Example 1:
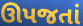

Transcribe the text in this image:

ઊપજતાં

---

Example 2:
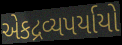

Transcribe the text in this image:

એકદ્રવ્યપર્યાયો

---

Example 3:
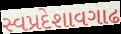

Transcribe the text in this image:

સ્વપ્રદેશાવગાઢ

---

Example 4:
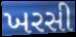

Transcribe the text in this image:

ખરસી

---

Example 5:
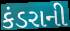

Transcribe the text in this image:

કંડરાની